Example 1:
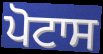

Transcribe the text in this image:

ਪੋਟਾਸ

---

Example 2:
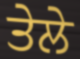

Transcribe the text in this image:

ਤੇਲੇ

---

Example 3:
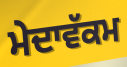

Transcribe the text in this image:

ਮੇਦਾਵੱਕਮ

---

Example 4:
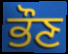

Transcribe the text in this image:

ਭੌਣ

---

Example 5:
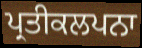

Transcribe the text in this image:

ਪ੍ਰਤੀਕਲਪਨਾ